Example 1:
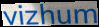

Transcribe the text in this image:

vizhum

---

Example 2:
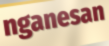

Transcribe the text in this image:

nganesan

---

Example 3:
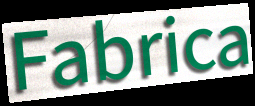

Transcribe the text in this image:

Fabrica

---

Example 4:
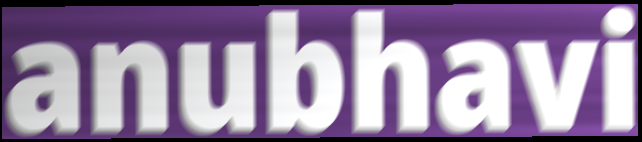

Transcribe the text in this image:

anubhavi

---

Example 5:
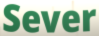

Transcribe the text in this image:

Sever